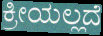
ಕ್ರೀಯಲ್ಲದೆ